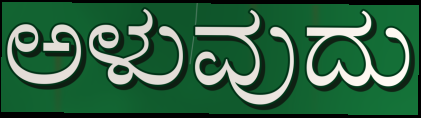
ಅಳುವುದು